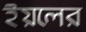
ইয়লের